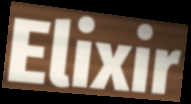
Elixir